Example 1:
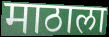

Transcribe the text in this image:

माठाला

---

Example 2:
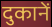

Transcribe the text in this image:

दुकानें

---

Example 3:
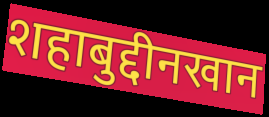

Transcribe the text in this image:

शहाबुद्दीनखान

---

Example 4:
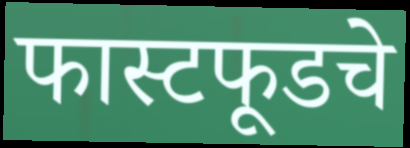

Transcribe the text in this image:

फास्टफूडचे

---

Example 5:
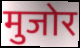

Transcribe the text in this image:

मुजोर